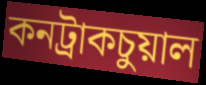
কনট্রাকচুয়াল